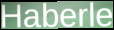
Haberle